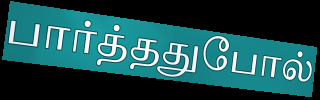
பார்த்ததுபோல்